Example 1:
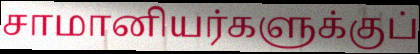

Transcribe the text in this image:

சாமானியர்களுக்குப்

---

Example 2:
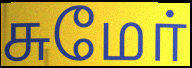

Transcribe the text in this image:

சுமேர்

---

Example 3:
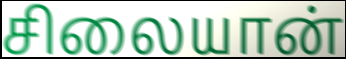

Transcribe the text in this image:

சிலையான்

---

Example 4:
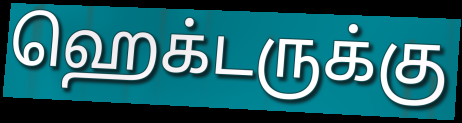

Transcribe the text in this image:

ஹெக்டருக்கு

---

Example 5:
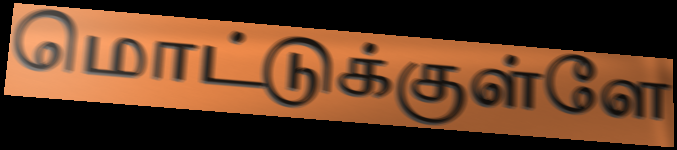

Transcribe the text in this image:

மொட்டுக்குள்ளே